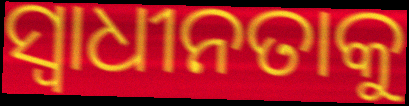
ସ୍ଵାଧୀନତାକୁ